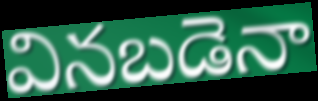
వినబడెనా